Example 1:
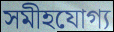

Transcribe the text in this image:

সমীহযোগ্য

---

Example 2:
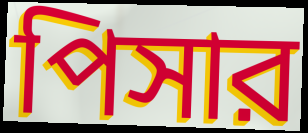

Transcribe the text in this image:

পিসার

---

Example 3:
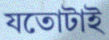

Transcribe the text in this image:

যতোটাই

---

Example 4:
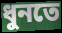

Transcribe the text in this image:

ধুনতে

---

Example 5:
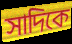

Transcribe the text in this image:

সাদিকে